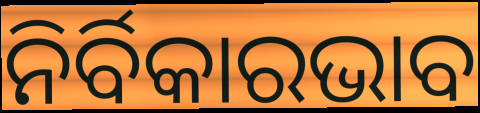
ନିର୍ବିକାରଭାବ